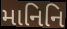
માનિનિ